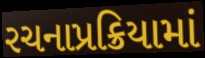
રચનાપ્રક્રિયામાં